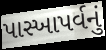
પાસ્ખાપર્વનું